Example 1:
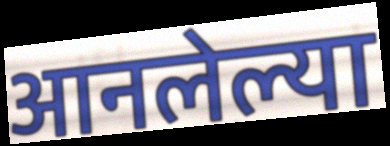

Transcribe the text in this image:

आनलेल्या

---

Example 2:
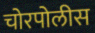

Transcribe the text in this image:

चोरपोलीस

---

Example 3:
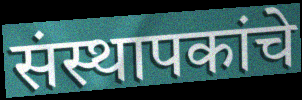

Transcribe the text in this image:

संस्थापकांचे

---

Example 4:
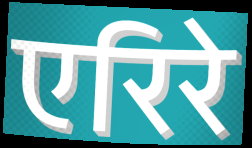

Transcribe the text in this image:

एरिरे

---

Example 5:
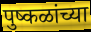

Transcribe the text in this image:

पुष्कळांच्या